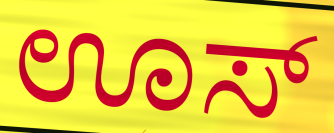
ಊಸ್